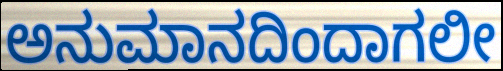
ಅನುಮಾನದಿಂದಾಗಲೀ